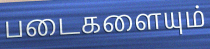
படைகளையும்